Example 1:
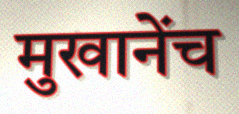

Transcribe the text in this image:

मुखानेंच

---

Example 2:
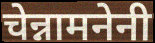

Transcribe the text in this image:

चेन्नामनेनी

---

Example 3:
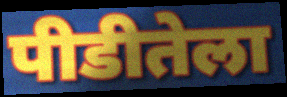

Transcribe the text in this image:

पीडीतेला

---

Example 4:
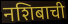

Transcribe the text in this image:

नशिबाची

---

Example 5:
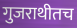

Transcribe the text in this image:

गुजराथीतच